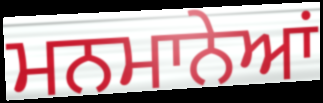
ਮਨਮਾਨੇਆਂ